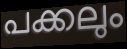
പക്കലും